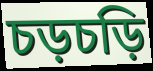
চড়চড়ি